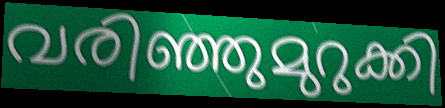
വരിഞ്ഞുമുറുക്കി